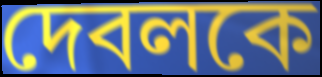
দেবলকে